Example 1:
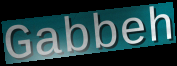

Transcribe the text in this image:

Gabbeh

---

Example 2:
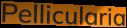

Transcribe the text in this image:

Pellicularia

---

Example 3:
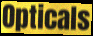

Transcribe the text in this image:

Opticals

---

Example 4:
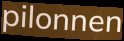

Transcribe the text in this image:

pilonnen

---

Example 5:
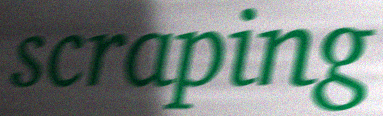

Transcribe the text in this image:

scraping